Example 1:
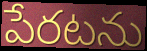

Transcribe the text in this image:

పేరటను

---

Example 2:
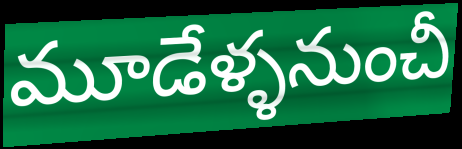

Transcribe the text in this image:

మూడేళ్ళనుంచీ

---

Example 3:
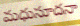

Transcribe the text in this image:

మధుసూదనా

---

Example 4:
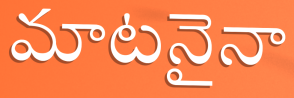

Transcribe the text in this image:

మాటనైనా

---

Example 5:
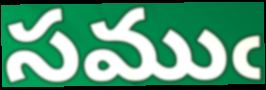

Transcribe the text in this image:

సముఁ